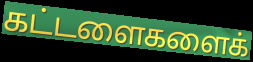
கட்டளைகளைக்